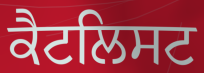
ਕੈਟਲਿਸਟ